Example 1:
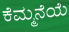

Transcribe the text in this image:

ಕೆಮ್ಮನೆಯೆ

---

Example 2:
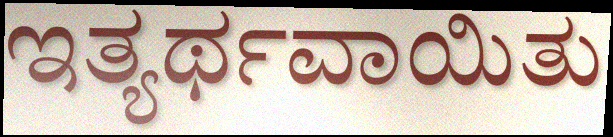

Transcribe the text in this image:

ಇತ್ಯರ್ಥವಾಯಿತು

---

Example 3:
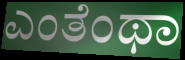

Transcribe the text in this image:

ಎಂತೆಂಥಾ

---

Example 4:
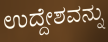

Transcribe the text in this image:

ಉದ್ದೇಶವನ್ನು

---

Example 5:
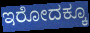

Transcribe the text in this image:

ಇರೋದಕ್ಕೂ